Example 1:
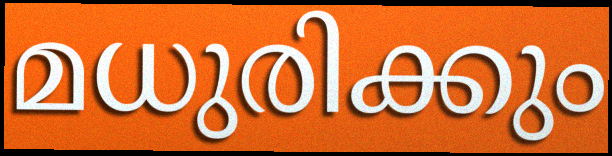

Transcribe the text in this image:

മധുരിക്കും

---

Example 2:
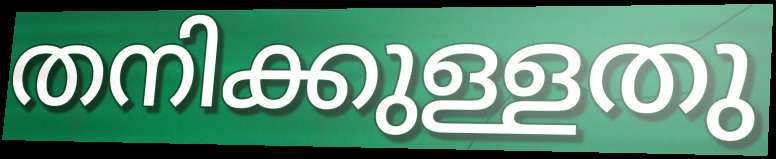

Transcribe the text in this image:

തനിക്കുള്ളതു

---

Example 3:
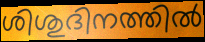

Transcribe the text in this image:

ശിശുദിനത്തിൽ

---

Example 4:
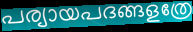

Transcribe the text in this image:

പര്യായപദങ്ങളത്രേ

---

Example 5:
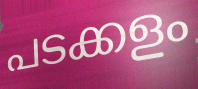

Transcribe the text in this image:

പടക്കളം